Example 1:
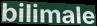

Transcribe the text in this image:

bilimale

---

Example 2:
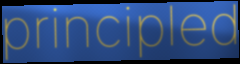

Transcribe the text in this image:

principled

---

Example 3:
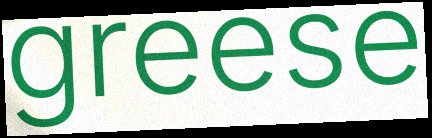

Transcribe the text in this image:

greese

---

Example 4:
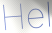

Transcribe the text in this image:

Hel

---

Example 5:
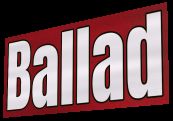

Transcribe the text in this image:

Ballad